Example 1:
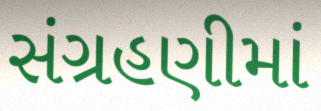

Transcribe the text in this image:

સંગ્રહણીમાં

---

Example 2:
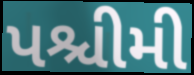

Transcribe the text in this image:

પશ્ચીમી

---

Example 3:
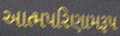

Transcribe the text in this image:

આત્મપરિણામરૂપ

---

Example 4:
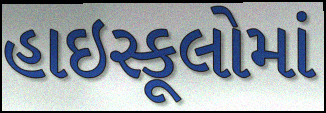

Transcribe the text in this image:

હાઇસ્કૂલોમાં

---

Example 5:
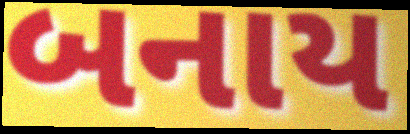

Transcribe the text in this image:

બનાય